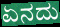
ಏನದು